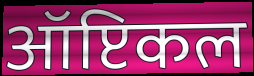
ऑप्टिकल